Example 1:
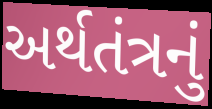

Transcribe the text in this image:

અર્થતંત્રનું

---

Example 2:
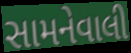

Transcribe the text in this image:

સામનેવાલી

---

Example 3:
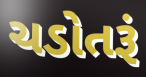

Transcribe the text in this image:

ચડોતરૂં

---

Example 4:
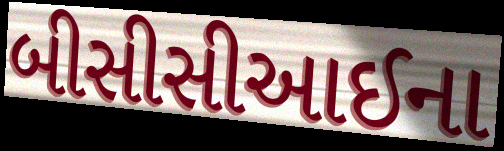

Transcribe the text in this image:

બીસીસીઆઈના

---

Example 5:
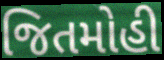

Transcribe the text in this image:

જિતમોહી